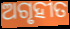
ଅଗୃହୀତ